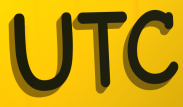
UTC